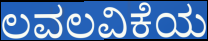
ಲವಲವಿಕೆಯ